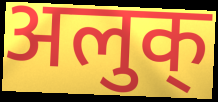
अलुक्